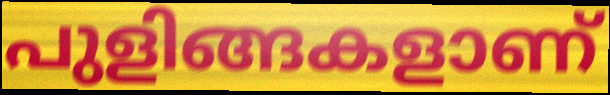
പുളിങ്ങകളാണ്